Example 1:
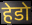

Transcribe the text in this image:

हेडो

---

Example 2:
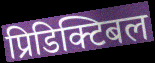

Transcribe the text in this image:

प्रिडिक्टिबल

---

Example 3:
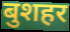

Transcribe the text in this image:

बुशहर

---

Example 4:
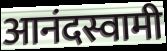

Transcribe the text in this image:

आनंदस्वामी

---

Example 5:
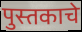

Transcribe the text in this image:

पुस्तकाचे